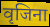
वृजिना